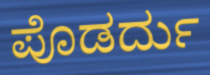
ಪೊಡರ್ದು